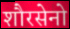
शौरसेनो